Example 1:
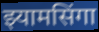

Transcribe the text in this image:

झ्यामसिंगा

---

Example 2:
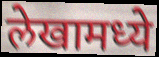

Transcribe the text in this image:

लेखामध्ये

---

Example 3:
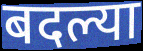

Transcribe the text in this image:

बदल्या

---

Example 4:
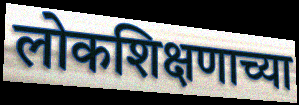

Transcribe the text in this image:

लोकशिक्षणाच्या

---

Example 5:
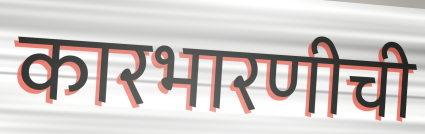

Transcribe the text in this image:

कारभारणीची